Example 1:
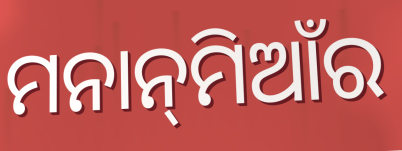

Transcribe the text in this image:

ମନାନ୍‌ମିଆଁର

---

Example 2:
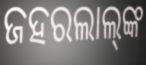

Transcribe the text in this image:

ଜହରଲାଲ୍‌ଙ୍କ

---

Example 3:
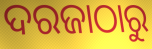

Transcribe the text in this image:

ଦରଜାଠାରୁ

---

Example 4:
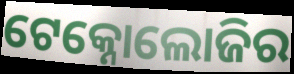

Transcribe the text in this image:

ଟେକ୍ନୋଲୋଜିର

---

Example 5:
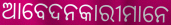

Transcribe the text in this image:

ଆବେଦନକାରୀମାନେ